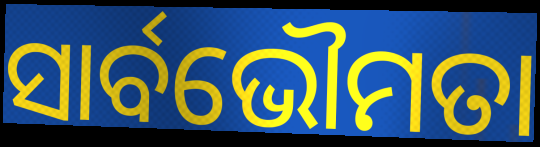
ସାର୍ବଭୌମତା